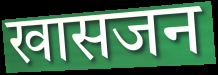
खासजन